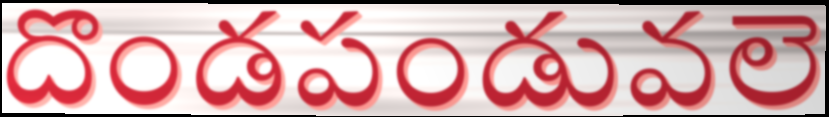
దొండపండువలె